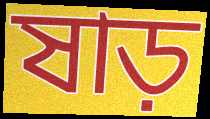
ষাড়